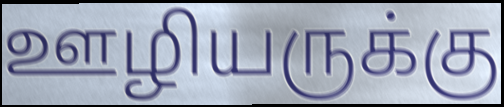
ஊழியருக்கு